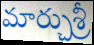
మార్చుశ్రీ